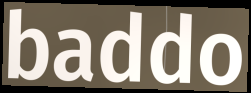
baddo